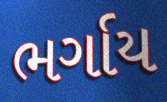
ભર્ગાય